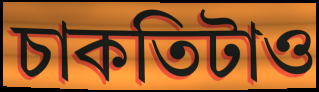
চাকতিটাও